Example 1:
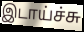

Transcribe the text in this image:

இடாய்ச்சு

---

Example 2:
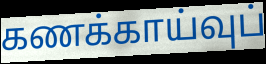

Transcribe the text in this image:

கணக்காய்வுப்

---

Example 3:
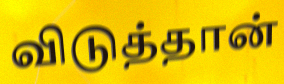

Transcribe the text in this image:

விடுத்தான்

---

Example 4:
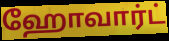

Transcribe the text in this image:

ஹோவார்ட்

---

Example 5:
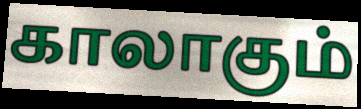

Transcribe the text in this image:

காலாகும்